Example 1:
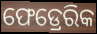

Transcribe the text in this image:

ଫେଡ୍ରେରିକ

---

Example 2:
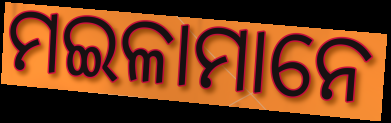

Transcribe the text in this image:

ମଇଳାମାନେ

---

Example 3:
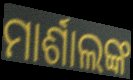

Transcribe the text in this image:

ମାର୍ଶାଲଙ୍କ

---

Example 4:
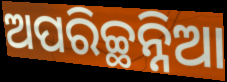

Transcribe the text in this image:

ଅପରିଚ୍ଛନ୍ନିଆ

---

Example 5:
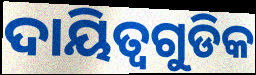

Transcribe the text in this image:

ଦାୟିତ୍ୱଗୁଡିକ